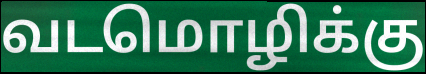
வடமொழிக்கு